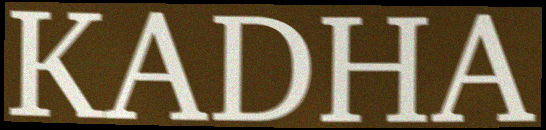
KADHA